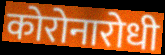
कोरोनारोधी